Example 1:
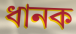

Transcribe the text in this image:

ধানক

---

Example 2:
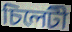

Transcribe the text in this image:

চিলেটী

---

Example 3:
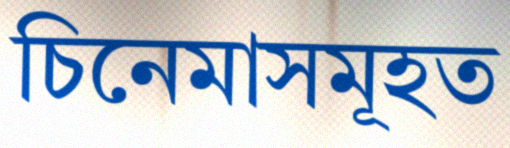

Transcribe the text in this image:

চিনেমাসমূহত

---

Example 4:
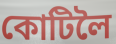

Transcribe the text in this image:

কোটিলৈ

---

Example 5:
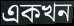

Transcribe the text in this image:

একখন